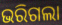
ଭରିଗଲା